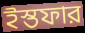
ইস্তফার